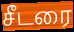
சீடரை